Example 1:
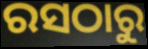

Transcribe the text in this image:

ରସଠାରୁ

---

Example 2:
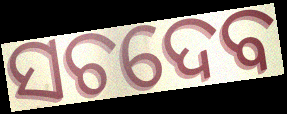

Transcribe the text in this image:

ସଚଦେବ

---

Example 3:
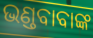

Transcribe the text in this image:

ଭଣ୍ଡବାବାଙ୍କ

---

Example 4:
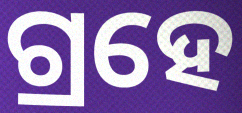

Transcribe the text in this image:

ଗ୍ରହେ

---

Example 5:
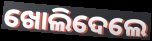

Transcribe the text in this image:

ଖୋଲିଦେଲେ